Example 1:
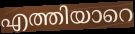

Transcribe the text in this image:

എത്തിയാറെ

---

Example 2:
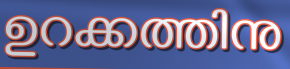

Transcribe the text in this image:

ഉറക്കത്തിനു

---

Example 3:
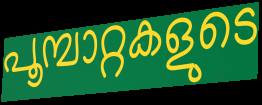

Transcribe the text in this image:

പൂമ്പാറ്റകളുടെ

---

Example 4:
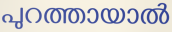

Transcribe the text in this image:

പുറത്തായാൽ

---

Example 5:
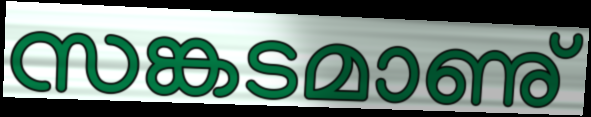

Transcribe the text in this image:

സങ്കടമാണു്